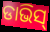
ଡାଭିସ୍